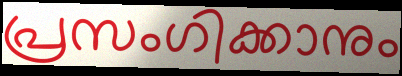
പ്രസംഗിക്കാനും